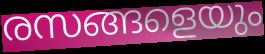
രസങ്ങളെയും